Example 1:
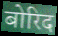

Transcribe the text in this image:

बोरिद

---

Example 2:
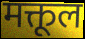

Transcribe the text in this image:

मक्तूल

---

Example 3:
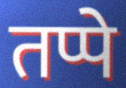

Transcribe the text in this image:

तप्पे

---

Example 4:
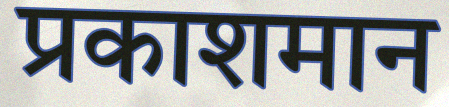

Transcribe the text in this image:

प्रकाशमान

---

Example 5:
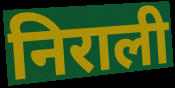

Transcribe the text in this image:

निराली